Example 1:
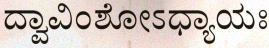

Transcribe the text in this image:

ದ್ವಾವಿಂಶೋಽಧ್ಯಾಯಃ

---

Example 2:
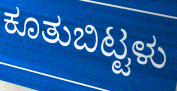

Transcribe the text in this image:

ಕೂತುಬಿಟ್ಟಳು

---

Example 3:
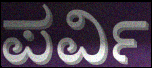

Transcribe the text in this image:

ಪರ್ವಿ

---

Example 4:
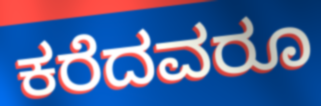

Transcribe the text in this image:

ಕರೆದವರೂ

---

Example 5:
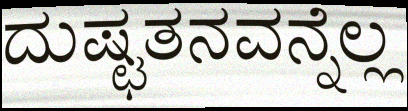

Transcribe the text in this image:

ದುಷ್ಟತನವನ್ನೆಲ್ಲ